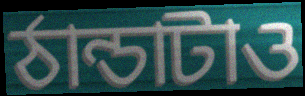
ঠান্ডাটাও